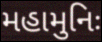
મહામુનિઃ